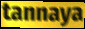
tannaya